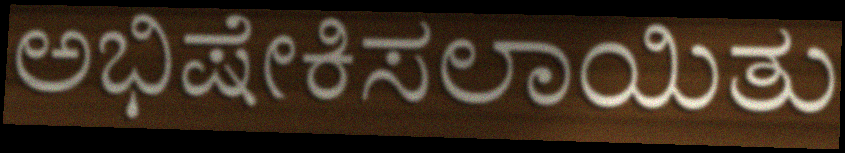
ಅಭಿಷೇಕಿಸಲಾಯಿತು